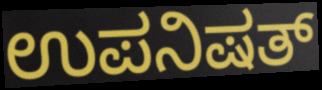
ಉಪನಿಷತ್